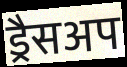
ड्रैसअप